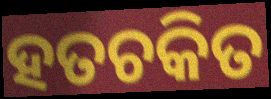
ହତଚକିତ